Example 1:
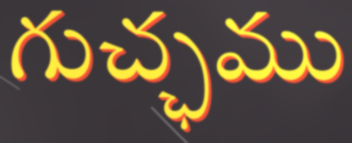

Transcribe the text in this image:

గుచ్ఛము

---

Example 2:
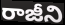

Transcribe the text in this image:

రాజీని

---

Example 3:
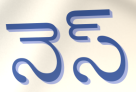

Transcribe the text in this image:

నెస్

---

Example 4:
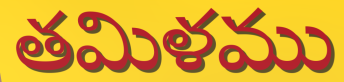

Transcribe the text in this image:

తమిళము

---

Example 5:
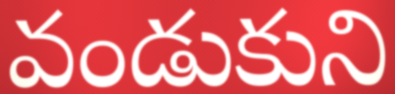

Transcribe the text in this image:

వండుకుని